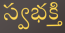
స్వభక్తి